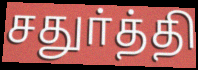
சதுர்த்தி